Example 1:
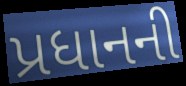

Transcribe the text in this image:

પ્રધાનની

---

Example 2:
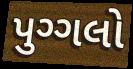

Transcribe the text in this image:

પુગ્ગલો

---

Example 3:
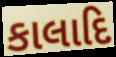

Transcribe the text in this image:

કાલાદિ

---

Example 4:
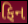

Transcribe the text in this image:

ફિન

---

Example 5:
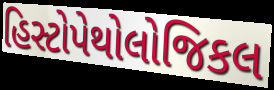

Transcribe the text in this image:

હિસ્ટોપેથોલોજિકલ